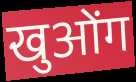
खुओंग